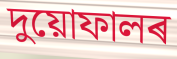
দুয়োফালৰ